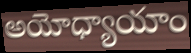
అయోధ్యాయాం